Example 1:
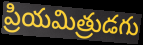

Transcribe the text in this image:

ప్రియమిత్రుడగు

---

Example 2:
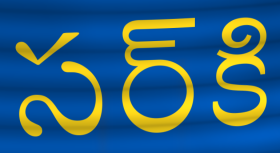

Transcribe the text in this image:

సర్‌కి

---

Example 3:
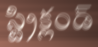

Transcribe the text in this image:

స్ట్రిక్లండ్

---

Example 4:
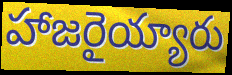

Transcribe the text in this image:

హాజరైయ్యారు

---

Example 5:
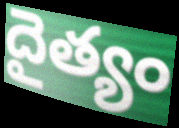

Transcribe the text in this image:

దైత్యం